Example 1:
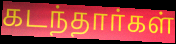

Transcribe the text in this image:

கடந்தார்கள்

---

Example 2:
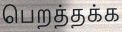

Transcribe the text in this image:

பெறத்தக்க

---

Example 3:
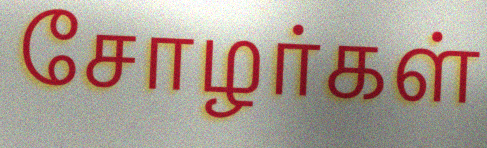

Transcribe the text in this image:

சோழர்கள்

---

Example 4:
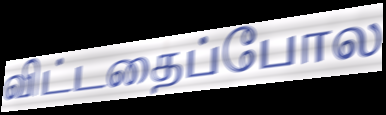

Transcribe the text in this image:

விட்டதைப்போல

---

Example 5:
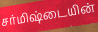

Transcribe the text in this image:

சர்மிஷ்டையின்